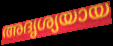
അദൃശ്യയായ